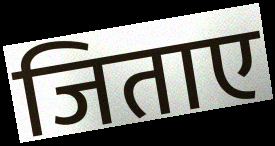
जिताए